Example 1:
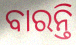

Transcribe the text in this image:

ବାରନ୍ତି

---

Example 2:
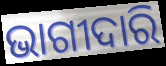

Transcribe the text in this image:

ଭାଗୀଦାରି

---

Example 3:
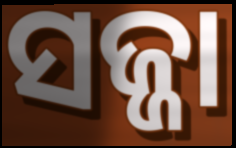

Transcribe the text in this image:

ସଜ୍ଜା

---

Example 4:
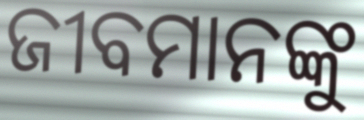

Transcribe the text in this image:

ଜୀବମାନଙ୍କୁ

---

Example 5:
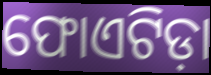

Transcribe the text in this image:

ଫୋଏଟିଡ଼ା